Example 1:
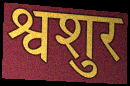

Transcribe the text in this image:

श्वशुर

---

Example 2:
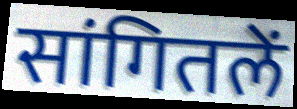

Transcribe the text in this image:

सांगितलें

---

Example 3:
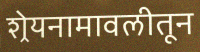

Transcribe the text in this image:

श्रेयनामावलीतून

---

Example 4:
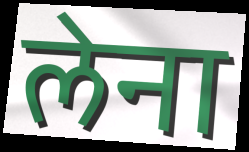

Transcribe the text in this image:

लेना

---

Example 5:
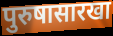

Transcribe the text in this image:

पुरुषासारखा